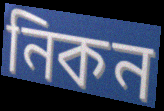
নিকন